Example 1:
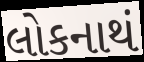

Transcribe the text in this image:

લોકનાથં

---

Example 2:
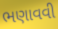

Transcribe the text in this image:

ભણાવવી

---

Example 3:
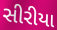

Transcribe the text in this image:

સીરીયા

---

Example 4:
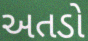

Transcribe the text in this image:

અતડો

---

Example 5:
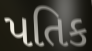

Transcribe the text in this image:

પતિક